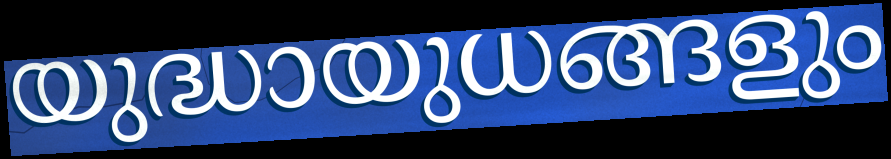
യുദ്ധായുധങ്ങളും